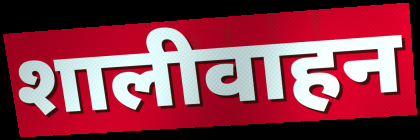
शालीवाहन